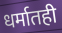
धर्मातही